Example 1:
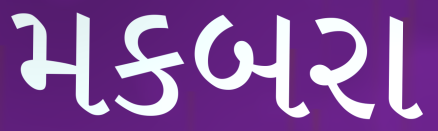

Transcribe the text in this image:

મકબરા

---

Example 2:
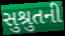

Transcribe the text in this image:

સુશ્રુતની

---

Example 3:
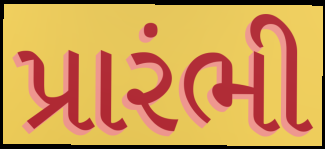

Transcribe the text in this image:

પ્રારંભી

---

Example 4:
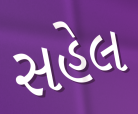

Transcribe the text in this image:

સહેલ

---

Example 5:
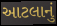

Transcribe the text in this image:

આટલાનું